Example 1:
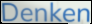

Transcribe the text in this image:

Denken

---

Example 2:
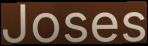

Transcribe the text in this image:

Joses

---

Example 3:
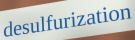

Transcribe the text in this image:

desulfurization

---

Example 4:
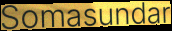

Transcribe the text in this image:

Somasundar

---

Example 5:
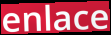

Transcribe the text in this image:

enlace